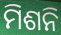
ମିଶନି